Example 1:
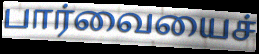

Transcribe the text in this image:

பார்வையைச்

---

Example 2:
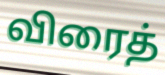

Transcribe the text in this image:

விரைத்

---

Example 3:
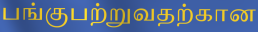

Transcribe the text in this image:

பங்குபற்றுவதற்கான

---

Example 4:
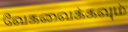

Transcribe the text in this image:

வேகவைக்கவும்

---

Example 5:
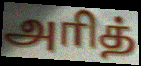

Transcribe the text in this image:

அரித்